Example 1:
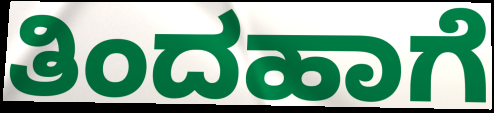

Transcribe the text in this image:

ತಿಂದಹಾಗೆ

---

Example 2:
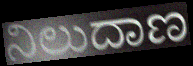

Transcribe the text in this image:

ನಿಲುದಾಣ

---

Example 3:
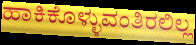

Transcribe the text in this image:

ಹಾಕಿಕೊಳ್ಳುವಂತಿರಲಿಲ್ಲ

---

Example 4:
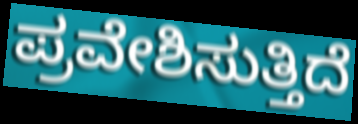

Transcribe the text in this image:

ಪ್ರವೇಶಿಸುತ್ತಿದೆ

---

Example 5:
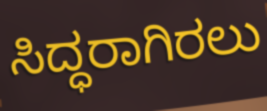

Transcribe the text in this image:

ಸಿದ್ಧರಾಗಿರಲು